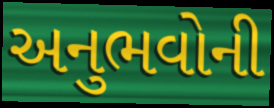
અનુભવોની